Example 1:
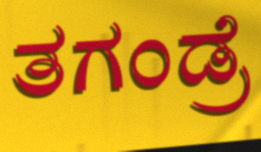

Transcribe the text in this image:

ತಗಂಡ್ರೆ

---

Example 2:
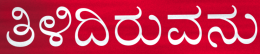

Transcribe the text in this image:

ತಿಳಿದಿರುವನು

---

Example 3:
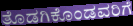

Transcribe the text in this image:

ತೊಡಗಿಕೊಂಡವರಿಗೆ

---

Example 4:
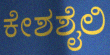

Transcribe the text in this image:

ಕೇಶಶೈಲಿ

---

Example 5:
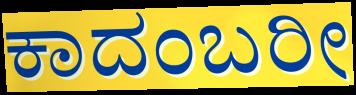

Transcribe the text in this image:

ಕಾದಂಬರೀ